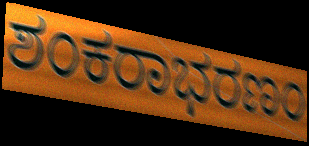
ಶಂಕರಾಭರಣಂ